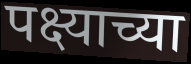
पक्ष्याच्या